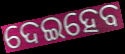
ଦେଇହେବ